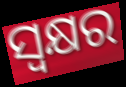
ସ୍ୱକ୍ଷର